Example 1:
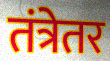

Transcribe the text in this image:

तंत्रेतर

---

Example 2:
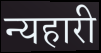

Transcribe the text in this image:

न्यहारी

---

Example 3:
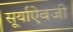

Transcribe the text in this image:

सूर्याऐवजी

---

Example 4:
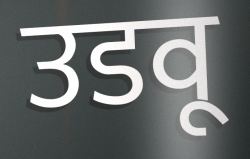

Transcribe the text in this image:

उडवू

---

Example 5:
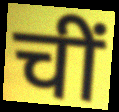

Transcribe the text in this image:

चीं